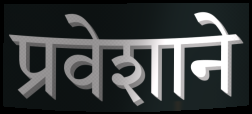
प्रवेशाने